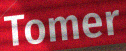
Tomer